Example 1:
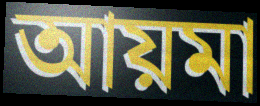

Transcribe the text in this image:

আয়মা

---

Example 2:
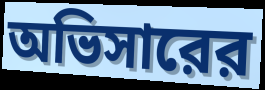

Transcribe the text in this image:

অভিসারের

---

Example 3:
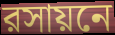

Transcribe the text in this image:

রসায়নে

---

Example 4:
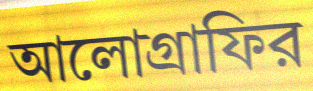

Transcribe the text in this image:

আলোগ্রাফির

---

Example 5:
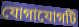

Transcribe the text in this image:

যোগাযোগটি